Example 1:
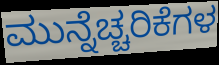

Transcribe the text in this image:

ಮುನ್ನೆಚ್ಚರಿಕೆಗಳ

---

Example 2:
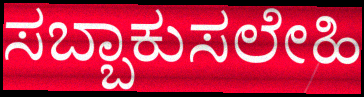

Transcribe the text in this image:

ಸಬ್ಬಾಕುಸಲೇಹಿ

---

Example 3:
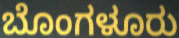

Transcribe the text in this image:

ಬೊಂಗಳೂರು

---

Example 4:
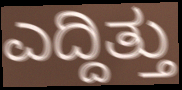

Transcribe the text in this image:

ಎದ್ದಿತ್ತು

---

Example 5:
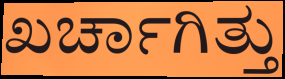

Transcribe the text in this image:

ಖರ್ಚಾಗಿತ್ತು